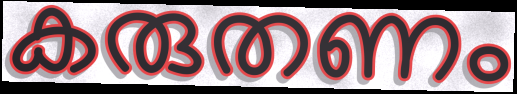
കരുതണം